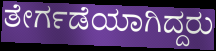
ತೇರ್ಗಡೆಯಾಗಿದ್ದರು